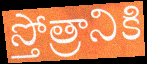
స్తోత్రానికి